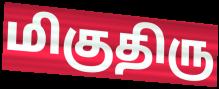
மிகுதிரு